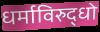
धर्माविरुद्धो